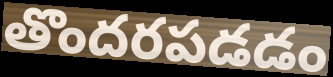
తొందరపడడం